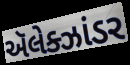
ઍલેક્ઝાંડર